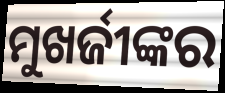
ମୁଖର୍ଜୀଙ୍କର